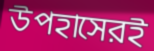
উপহাসেরই